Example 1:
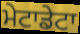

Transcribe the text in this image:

ਮੇਟਾਡੇਟਾ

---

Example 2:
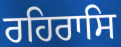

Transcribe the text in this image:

ਰਹਿਰਾਸਿ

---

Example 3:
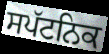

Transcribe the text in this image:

ਸਪੱਟਨਿਕ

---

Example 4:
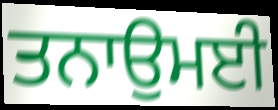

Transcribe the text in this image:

ਤਨਾਉਮਈ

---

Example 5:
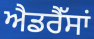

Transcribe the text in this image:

ਐਡਰੈੱਸਾਂ